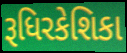
રૂધિરકેશિકા